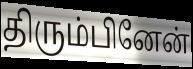
திரும்பினேன்